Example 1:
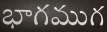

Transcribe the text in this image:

భాగముగ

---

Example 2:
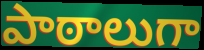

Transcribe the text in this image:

పాఠాలుగా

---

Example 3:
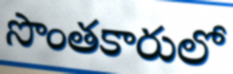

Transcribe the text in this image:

సొంతకారులో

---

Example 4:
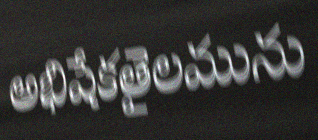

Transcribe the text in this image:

అభిషేకతైలమును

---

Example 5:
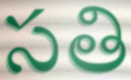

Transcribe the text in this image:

సతి